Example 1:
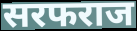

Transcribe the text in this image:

सरफराज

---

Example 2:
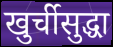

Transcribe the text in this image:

खुर्चीसुद्धा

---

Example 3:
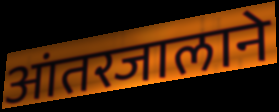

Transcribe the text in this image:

आंतरजालाने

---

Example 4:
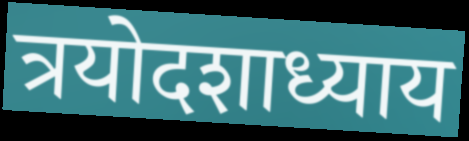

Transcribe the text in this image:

त्रयोदशाध्याय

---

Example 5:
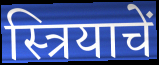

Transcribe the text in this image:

स्त्रियाचें